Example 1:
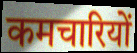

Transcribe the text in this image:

कमचारियों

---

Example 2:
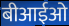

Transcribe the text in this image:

बीआईओ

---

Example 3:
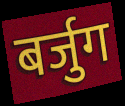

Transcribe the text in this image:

बर्जुग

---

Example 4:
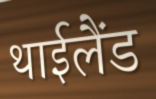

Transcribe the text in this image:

थाईलैंड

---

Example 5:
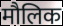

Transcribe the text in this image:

मौलिक